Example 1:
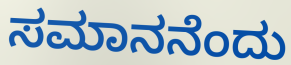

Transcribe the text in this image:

ಸಮಾನನೆಂದು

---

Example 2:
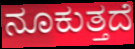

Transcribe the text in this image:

ನೂಕುತ್ತದೆ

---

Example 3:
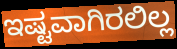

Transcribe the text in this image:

ಇಷ್ಟವಾಗಿರಲಿಲ್ಲ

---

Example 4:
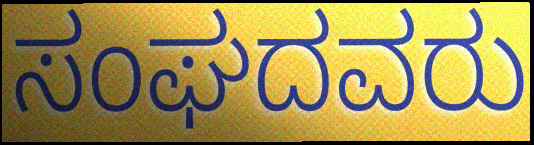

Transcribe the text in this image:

ಸಂಘದವರು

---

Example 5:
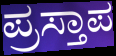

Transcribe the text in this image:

ಪ್ರಸ್ತಾಪ